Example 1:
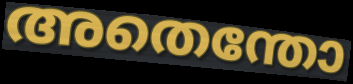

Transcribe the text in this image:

അതെന്തോ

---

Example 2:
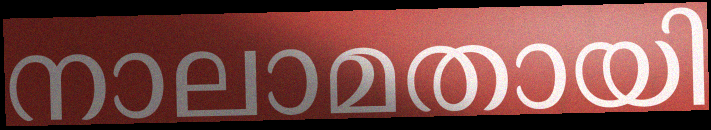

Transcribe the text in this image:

നാലാമതായി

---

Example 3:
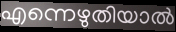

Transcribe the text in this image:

എന്നെഴുതിയാൽ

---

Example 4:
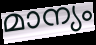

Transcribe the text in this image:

മാന്യം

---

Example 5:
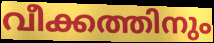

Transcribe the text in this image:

വീക്കത്തിനും